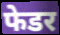
फेडर